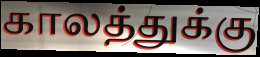
காலத்துக்கு